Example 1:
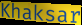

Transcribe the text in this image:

Khaksar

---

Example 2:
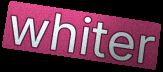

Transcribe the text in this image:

whiter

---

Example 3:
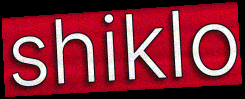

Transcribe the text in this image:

shiklo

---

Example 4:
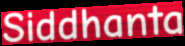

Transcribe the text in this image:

Siddhanta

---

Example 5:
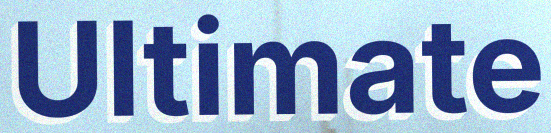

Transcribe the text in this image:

Ultimate